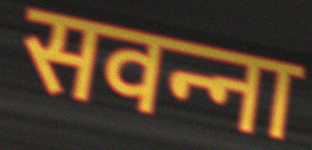
सवन्ना